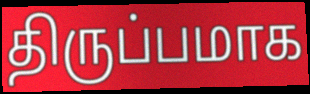
திருப்பமாக